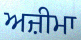
ਅਜ਼ੀਮਾ